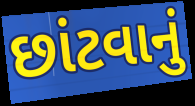
છાંટવાનું